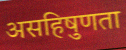
असहिषुणता